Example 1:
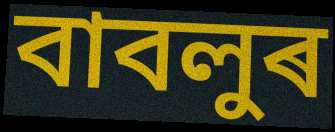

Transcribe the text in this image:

বাবলুৰ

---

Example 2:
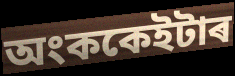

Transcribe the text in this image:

অংককেইটাৰ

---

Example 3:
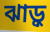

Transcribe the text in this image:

ঝাড়ু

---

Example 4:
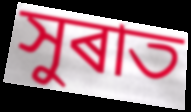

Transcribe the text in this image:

সুৰাত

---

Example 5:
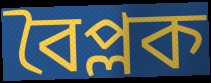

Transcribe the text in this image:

বৈপ্লক